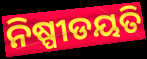
ନିଷ୍ପୀଡୟତି